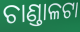
ଚାଣ୍ଡାଳଟା